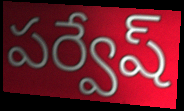
పర్వేష్